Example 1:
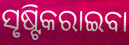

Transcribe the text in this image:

ସୃଷ୍ଟିକରାଇବା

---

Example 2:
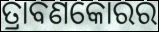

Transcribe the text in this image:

ତ୍ରାବଣକୋରର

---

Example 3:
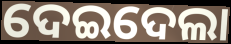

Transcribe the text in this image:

ଦେଇଦେଲା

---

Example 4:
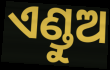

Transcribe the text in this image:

ଏଣ୍ଡୁଅ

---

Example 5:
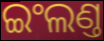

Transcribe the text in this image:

ଇଂଲଣ୍ତ